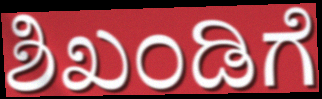
ಶಿಖಂಡಿಗೆ